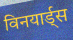
विनयार्ड्स